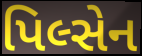
પિલ્સેન